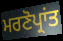
ਮਰਣੋਪ੍ਰਾਂਤ